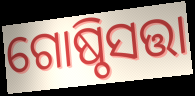
ଗୋଷ୍ଠିସତ୍ତା